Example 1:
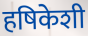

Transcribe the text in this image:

हषिकेशी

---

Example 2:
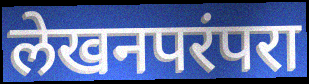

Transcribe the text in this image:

लेखनपरंपरा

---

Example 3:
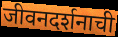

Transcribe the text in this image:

जीवनदर्शनाची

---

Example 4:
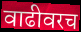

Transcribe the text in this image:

वाढीवरच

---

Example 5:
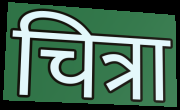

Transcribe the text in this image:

चित्रा